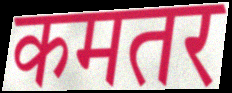
कमतर